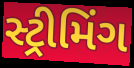
સ્ટ્રીમિંગ